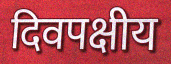
दिवपक्षीय